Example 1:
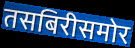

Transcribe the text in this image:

तसबिरीसमोर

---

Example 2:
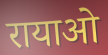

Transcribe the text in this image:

रायाओ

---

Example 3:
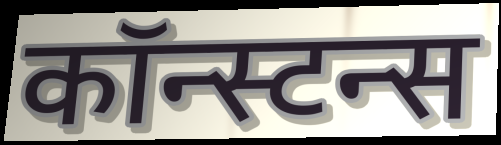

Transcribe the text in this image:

कॉन्स्टन्स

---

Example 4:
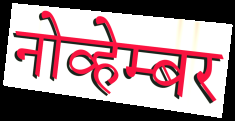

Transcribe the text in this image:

नोव्हेम्बर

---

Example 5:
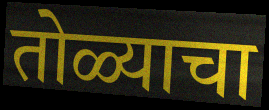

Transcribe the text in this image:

तोळ्याचा